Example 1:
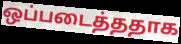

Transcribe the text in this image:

ஒப்படைத்ததாக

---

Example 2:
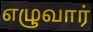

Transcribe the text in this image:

எழுவார்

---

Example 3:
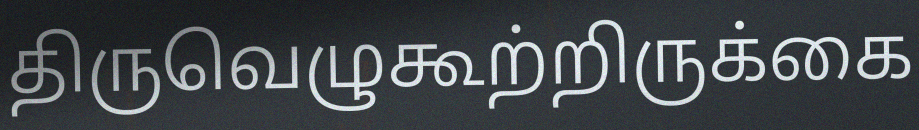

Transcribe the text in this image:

திருவெழுகூற்றிருக்கை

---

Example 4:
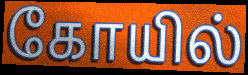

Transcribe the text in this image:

கோயில்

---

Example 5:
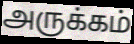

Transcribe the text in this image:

அருக்கம்